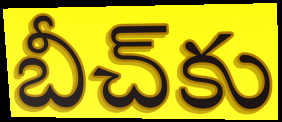
బీచ్‌కు